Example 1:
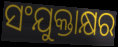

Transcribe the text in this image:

ସଂଯୁକ୍ତାକ୍ଷର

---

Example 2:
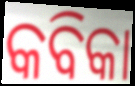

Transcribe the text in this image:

କବିକା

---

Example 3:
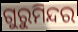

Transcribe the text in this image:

ଗୁରୁମିନ୍ଦର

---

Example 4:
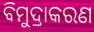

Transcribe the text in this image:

ବିମୁଦ୍ରାକରଣ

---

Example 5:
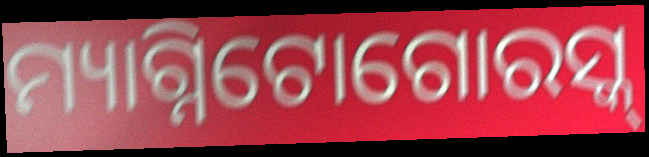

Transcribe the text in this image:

ମ୍ୟାଗ୍ନିଟୋଗୋରସ୍କ୍